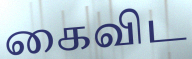
கைவிட